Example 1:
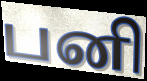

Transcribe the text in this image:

பனி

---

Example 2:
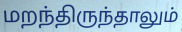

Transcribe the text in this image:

மறந்திருந்தாலும்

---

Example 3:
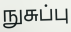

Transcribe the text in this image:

நுசுப்பு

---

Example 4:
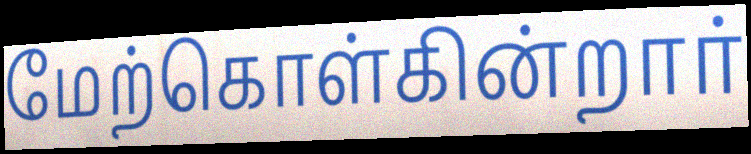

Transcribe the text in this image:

மேற்கொள்கின்றார்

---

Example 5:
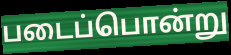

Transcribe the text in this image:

படைப்பொன்று